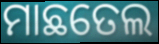
ମାଛତେଲ